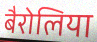
बैरोलिया